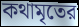
কথামৃতের